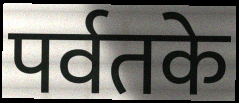
पर्वतके